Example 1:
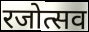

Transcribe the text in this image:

रजोत्सव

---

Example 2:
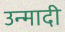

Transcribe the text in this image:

उन्मादी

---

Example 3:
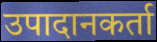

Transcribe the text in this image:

उपादानकर्ता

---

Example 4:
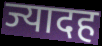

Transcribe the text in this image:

ज्यादह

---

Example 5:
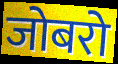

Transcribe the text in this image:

जोबरो